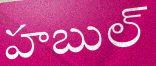
హబుల్